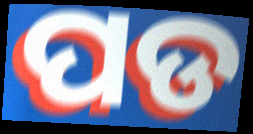
ପଡ